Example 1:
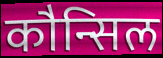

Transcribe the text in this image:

कौन्सिल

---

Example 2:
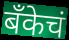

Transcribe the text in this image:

बॅंकेचं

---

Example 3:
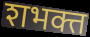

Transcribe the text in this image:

शभक्त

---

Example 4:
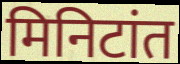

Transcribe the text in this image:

मिनिटांत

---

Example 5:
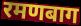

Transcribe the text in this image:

रमणबाग